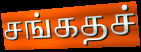
சங்கதச்